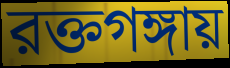
রক্তগঙ্গায়